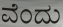
ವೆಂದು